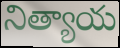
నిత్యాయ